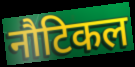
नौटिकल